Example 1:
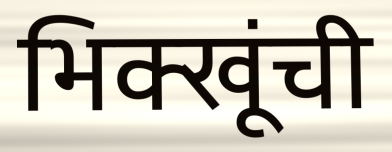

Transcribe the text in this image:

भिक्खूंची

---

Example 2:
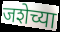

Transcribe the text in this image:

जशेच्या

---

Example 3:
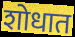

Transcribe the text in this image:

शोधात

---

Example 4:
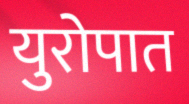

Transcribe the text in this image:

युरोपात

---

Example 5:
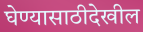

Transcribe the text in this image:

घेण्यासाठीदेखील